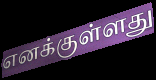
எனக்குள்ளது